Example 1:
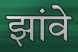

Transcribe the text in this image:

झांवे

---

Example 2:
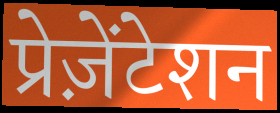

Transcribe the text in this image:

प्रेज़ेंटेशन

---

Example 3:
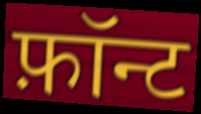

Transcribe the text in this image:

फ़ॉन्ट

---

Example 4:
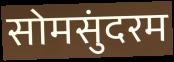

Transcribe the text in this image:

सोमसुंदरम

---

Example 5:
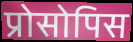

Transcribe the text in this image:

प्रोसोपिस